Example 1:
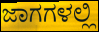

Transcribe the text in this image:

ಜಾಗಗಳಲ್ಲಿ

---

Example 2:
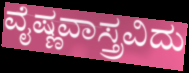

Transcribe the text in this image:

ವೈಷ್ಣವಾಸ್ತ್ರವಿದು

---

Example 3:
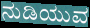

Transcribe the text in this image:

ನುಡಿಯುವ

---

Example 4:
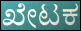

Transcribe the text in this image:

ಖೇಟಕ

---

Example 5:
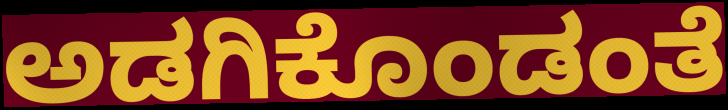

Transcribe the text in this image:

ಅಡಗಿಕೊಂಡಂತೆ